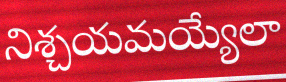
నిశ్చయమయ్యేలా